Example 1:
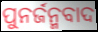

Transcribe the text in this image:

ପୁନର୍ଜନ୍ମବାଦ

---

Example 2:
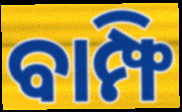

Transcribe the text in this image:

ବାମ୍ଫି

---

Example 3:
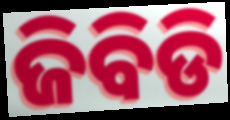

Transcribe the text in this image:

ଜିବିଡି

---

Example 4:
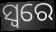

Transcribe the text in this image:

ସ୍ବରେ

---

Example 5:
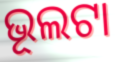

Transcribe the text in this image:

ଭୂଲଟା